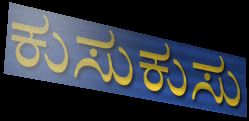
ಕುಸುಕುಸು